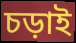
চড়াই